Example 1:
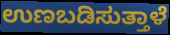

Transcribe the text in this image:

ಉಣಬಡಿಸುತ್ತಾಳೆ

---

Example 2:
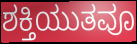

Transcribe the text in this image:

ಶಕ್ತಿಯುತವೂ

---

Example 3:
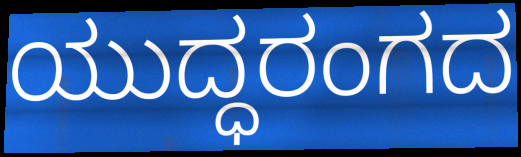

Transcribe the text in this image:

ಯುದ್ಧರಂಗದ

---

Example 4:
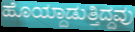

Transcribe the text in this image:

ಹೊಯ್ದಾಡುತ್ತಿದ್ದವು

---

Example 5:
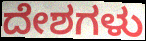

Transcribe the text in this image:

ದೇಶಗಳು